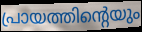
പ്രായത്തിന്റെയും